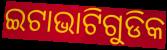
ଇଟାଭାଟିଗୁଡିକ